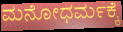
ಮನೋಧರ್ಮಕ್ಕೆ